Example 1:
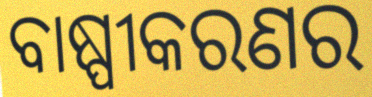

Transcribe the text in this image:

ବାଷ୍ପୀକରଣର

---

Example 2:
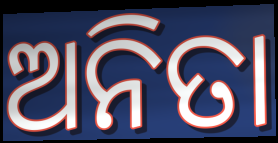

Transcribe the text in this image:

ଅନିତା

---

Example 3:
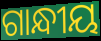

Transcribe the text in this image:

ଗାନ୍ଧୀୟ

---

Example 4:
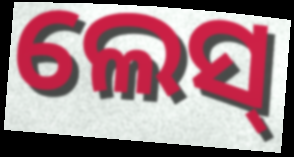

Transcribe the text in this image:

ଲେସ୍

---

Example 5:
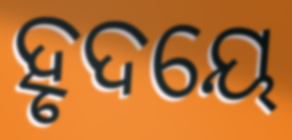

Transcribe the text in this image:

ହୃଦୟେ